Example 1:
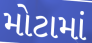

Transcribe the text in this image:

મોટામાં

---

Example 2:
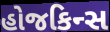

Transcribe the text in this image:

હોજકિન્સ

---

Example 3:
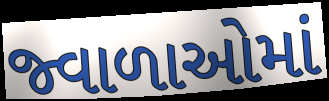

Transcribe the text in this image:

જ્વાળાઓમાં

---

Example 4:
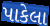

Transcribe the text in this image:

પાકેલા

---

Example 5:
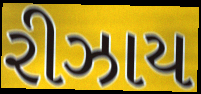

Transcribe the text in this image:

રીઝાય